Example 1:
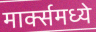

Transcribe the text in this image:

मार्क्समध्ये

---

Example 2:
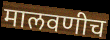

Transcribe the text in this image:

मालवणीच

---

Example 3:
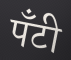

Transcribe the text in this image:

पॅंटी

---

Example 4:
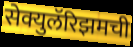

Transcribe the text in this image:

सेक्युलॅरिझमची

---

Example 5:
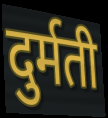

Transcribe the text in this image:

दुर्मती